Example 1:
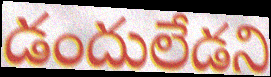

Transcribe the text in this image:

డందులేడని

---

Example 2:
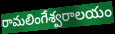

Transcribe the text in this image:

రామలింగేశ్వరాలయం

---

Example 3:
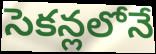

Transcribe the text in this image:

సెకన్లలోనే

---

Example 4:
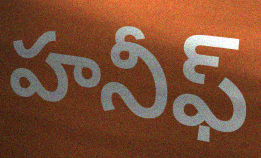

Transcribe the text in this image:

హనీఫ్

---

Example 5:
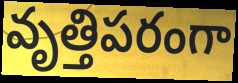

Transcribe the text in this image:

వృత్తిపరంగా